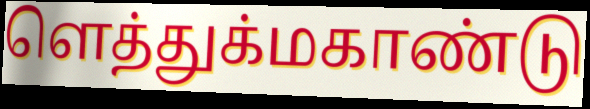
ளெத்துக்மகாண்டு